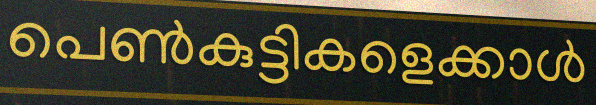
പെൺകുട്ടികളെക്കാൾ